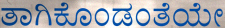
ತಾಗಿಕೊಂಡಂತೆಯೇ